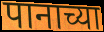
पानाच्या